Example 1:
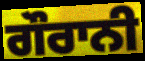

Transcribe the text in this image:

ਗੌਰਾਨੀ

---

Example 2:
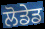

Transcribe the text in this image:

ਲੋਡੇਡ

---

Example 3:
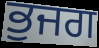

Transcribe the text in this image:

ਭੁਜਗ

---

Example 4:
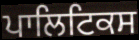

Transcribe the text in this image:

ਪਾਲਿਟਿਕਸ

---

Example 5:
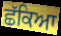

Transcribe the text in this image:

ਛੱਕਿਆ